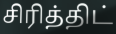
சிரித்திட்